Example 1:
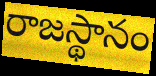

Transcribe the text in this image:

రాజస్థానం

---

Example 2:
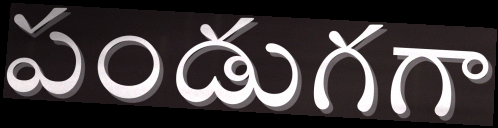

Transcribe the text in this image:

పండుగగా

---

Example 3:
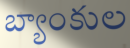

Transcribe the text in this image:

బ్యాంకుల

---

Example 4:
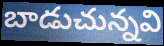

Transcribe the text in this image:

బాడుచున్నవి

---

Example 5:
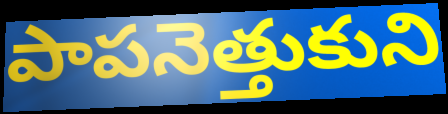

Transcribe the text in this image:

పాపనెత్తుకుని